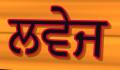
ਲਵੇਜ